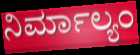
ನಿರ್ಮಾಲ್ಯಂ